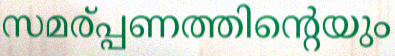
സമര്പ്പണത്തിന്റെയും